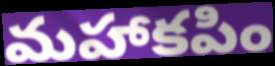
మహాకపిం